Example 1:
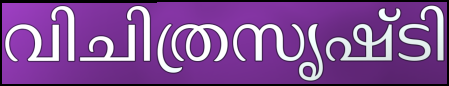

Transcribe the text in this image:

വിചിത്രസൃഷ്ടി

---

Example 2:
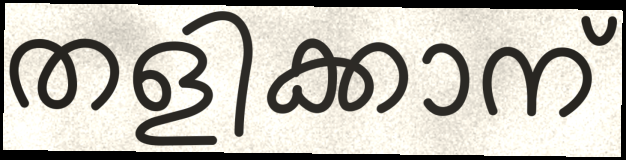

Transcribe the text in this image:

തളിക്കാന്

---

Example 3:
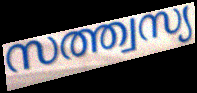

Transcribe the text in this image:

സത്ത്വസ്യ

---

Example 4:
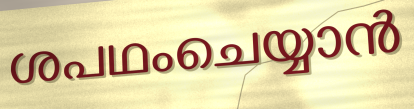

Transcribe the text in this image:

ശപഥംചെയ്യാൻ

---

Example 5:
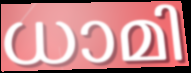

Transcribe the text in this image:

ധാമി